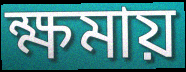
ক্ষমায়